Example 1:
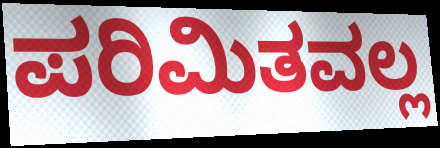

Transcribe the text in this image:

ಪರಿಮಿತವಲ್ಲ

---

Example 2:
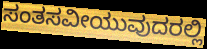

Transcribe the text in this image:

ಸಂತಸವೀಯುವುದರಲ್ಲಿ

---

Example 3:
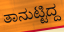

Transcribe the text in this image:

ತಾನುಟ್ಟಿದ್ದ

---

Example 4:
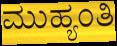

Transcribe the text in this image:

ಮುಹ್ಯಂತಿ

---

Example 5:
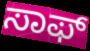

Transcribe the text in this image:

ಸಾಫ್